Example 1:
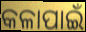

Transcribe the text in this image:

କଳାପାଇଁ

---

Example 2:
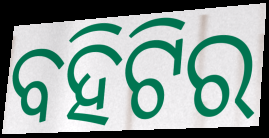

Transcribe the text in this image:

ବହିଟିର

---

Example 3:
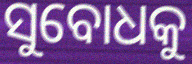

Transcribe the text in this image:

ସୁବୋଧକୁ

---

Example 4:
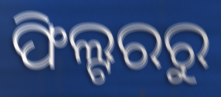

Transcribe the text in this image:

ଫିଲ୍ଟରରୁ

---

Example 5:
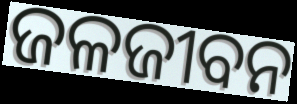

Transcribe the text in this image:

ଜଳଜୀବନ